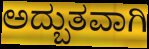
ಅದ್ಬುತವಾಗಿ